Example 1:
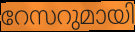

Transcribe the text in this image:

റേസറുമായി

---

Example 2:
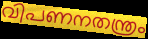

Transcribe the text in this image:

വിപണനതന്ത്രം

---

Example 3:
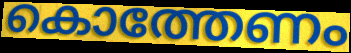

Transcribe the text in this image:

കൊത്തേണം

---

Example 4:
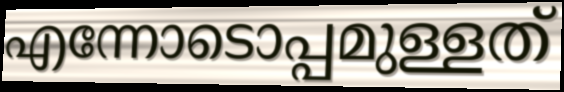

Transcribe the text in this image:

എന്നോടൊപ്പമുള്ളത്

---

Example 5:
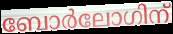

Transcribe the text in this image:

ബോർലോഗിന്